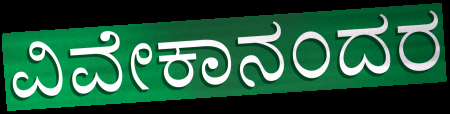
ವಿವೇಕಾನಂದರ